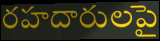
రహదారులపై